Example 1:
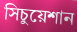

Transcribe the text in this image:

সিচুয়েশান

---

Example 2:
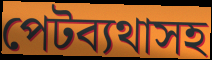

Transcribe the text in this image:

পেটব্যথাসহ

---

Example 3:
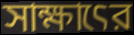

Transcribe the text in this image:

সাক্ষাৎের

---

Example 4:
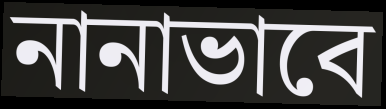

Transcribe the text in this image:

নানাভাবে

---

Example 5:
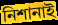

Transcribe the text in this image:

নিশানাই